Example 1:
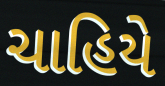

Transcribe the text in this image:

ચાહિયે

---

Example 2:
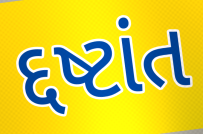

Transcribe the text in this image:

દ્દષ્ટાંત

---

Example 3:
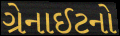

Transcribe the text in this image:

ગ્રેનાઈટનો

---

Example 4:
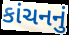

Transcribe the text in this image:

કાંચનનું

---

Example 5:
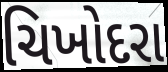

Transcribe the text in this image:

ચિખોદરા